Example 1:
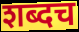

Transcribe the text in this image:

शब्दच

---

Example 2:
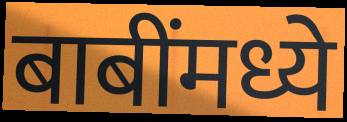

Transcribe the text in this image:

बाबींमध्ये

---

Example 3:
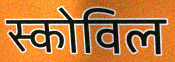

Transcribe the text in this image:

स्कोविल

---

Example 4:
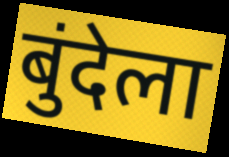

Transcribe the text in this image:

बुंदेला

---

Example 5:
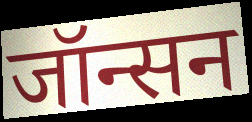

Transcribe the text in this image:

जॉन्सन